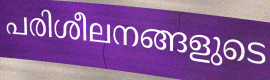
പരിശീലനങ്ങളുടെ